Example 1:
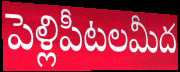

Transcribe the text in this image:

పెళ్లిపీటలమీద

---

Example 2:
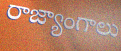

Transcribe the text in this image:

రాజ్యాంగాలు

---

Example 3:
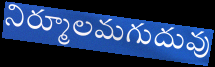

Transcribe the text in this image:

నిర్మూలమగుదువు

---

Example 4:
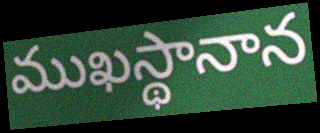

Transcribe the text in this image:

ముఖస్థానాన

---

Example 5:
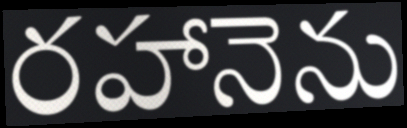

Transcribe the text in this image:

రహానెను